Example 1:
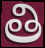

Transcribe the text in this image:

తి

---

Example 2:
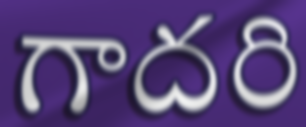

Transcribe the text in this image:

గాదరి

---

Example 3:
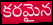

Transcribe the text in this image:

కరమైన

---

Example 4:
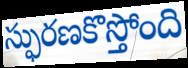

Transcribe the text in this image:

స్ఫురణకొస్తోంది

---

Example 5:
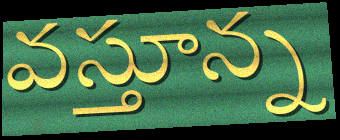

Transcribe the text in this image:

వస్తూన్న